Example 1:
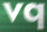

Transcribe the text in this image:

vq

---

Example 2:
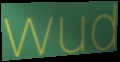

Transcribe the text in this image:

wud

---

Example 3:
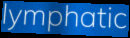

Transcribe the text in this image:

lymphatic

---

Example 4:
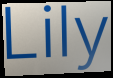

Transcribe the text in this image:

Lily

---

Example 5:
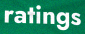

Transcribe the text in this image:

ratings